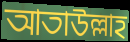
আতাউল্লাহ